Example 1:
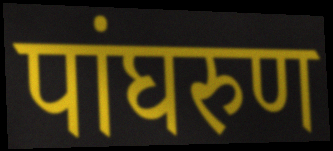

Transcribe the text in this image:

पांघरुण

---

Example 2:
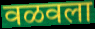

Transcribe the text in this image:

वळवला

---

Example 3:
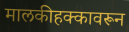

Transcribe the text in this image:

मालकीहक्कावरून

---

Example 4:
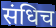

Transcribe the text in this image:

संधिच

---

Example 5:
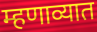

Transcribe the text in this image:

म्हणाव्यात